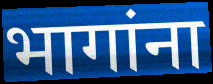
भागांना